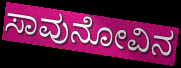
ಸಾವುನೋವಿನ